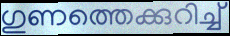
ഗുണത്തെക്കുറിച്ച്